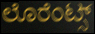
ಲೊರೆಂಟ್ಸ್